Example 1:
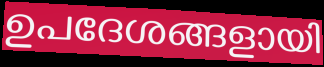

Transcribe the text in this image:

ഉപദേശങ്ങളായി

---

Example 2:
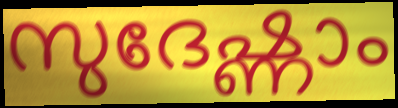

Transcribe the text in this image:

സുദേഷ്ണാം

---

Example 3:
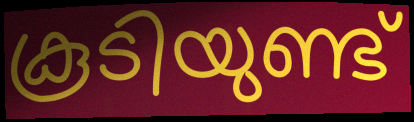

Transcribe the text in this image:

കൂടിയുണ്ട്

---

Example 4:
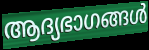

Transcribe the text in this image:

ആദ്യഭാഗങ്ങൾ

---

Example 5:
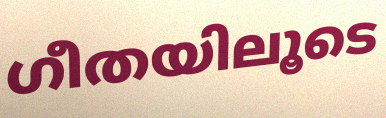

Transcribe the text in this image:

ഗീതയിലൂടെ